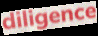
diligence